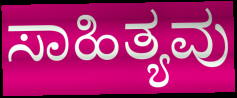
ಸಾಹಿತ್ಯವು